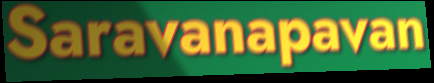
Saravanapavan